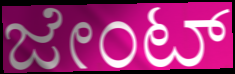
ಜೇಂಟ್